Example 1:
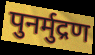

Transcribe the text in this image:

पुनर्मुद्रण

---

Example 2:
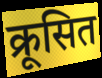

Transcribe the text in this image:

क्रूसित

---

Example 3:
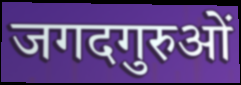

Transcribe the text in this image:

जगदगुरुओं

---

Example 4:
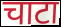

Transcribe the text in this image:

चाटा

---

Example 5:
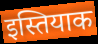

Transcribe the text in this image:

इस्तियाक